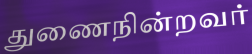
துணைநின்றவர்